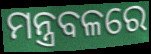
ମନ୍ତ୍ରବଳରେ